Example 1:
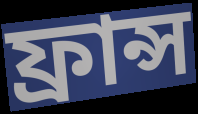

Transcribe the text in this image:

ফ্ৰান্স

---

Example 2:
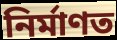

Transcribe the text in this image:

নিৰ্মাণত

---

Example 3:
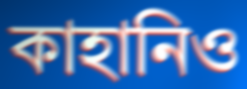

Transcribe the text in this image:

কাহানিও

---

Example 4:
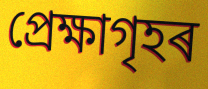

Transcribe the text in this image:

প্ৰেক্ষাগৃহৰ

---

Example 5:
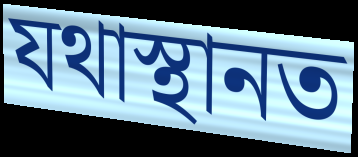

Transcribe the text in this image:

যথাস্থানত